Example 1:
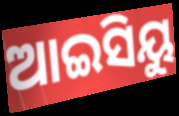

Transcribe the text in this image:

ଆଇସିୟୁ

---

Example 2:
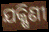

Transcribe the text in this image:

ଯକ୍ଷିଣୀ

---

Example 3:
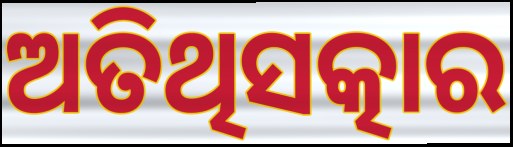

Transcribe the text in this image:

ଅତିଥିସତ୍କାର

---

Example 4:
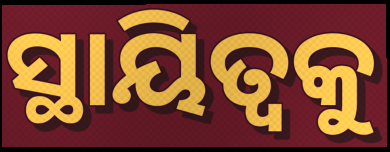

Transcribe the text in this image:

ସ୍ଥାୟିତ୍ୱକୁ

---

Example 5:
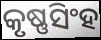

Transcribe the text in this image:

କୃଷ୍ଣସିଂହ